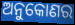
ଅନୁକୋଣର